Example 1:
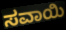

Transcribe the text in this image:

ಸವಾಯಿ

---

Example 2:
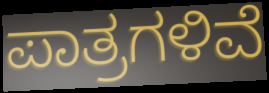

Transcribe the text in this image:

ಪಾತ್ರಗಳಿವೆ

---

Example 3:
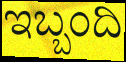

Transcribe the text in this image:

ಇಬ್ಬಂದಿ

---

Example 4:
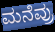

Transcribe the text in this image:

ಮನೆವ್ರು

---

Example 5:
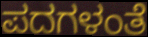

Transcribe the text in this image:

ಪದಗಳಂತೆ